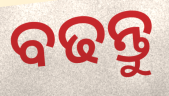
ବଢନ୍ତୁ